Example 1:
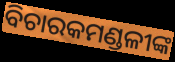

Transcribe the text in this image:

ବିଚାରକମଣ୍ଡଳୀଙ୍କ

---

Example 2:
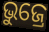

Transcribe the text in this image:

ଭୁଜ୍ରେ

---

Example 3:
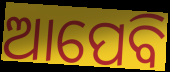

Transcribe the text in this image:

ଆପେବି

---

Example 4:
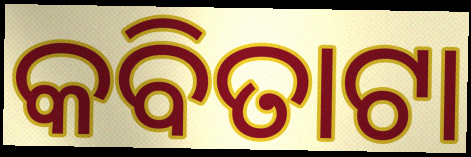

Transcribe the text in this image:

କବିତାଟା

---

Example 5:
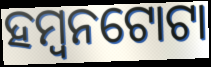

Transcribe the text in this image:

ହମ୍ବନଟୋଟା